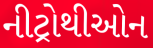
નીટ્રોથીઓન